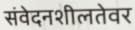
संवेदनशीलतेवर